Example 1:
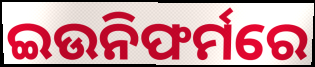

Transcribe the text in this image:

ଇଉନିଫର୍ମରେ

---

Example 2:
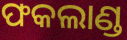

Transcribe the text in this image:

ଫକଲାଣ୍ଡ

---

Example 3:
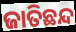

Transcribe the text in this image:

ଜାତିଛନ୍ଦ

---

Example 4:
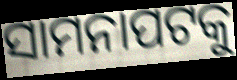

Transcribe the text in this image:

ସାମନାପଟକୁ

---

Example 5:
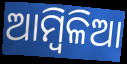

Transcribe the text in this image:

ଆମ୍ୱିଳିଆ